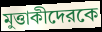
মুত্তাকীদেরকে